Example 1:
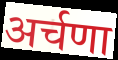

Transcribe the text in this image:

अर्चणा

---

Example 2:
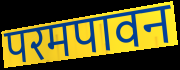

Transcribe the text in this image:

परमपावन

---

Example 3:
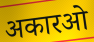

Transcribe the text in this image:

अकारओ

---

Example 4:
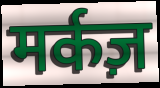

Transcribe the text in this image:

मर्कज़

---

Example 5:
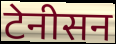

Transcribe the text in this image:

टेनीसन